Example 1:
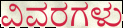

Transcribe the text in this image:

ವಿವರಗಳು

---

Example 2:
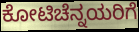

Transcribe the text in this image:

ಕೋಟಿಚೆನ್ನಯರಿಗೆ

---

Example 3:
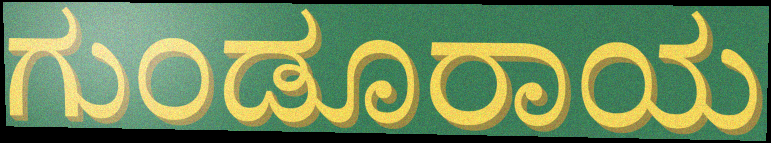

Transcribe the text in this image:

ಗುಂಡೂರಾಯ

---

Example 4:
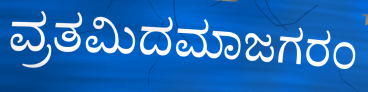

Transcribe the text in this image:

ವ್ರತಮಿದಮಾಜಗರಂ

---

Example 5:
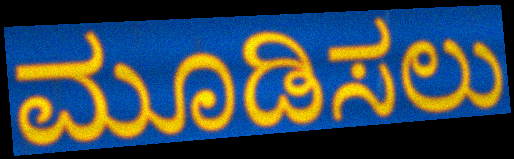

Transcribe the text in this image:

ಮೂಡಿಸಲು